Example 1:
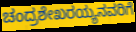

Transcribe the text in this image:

ಚಂದ್ರಶೇಖರಯ್ಯನವರಿಗೆ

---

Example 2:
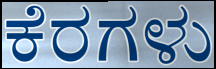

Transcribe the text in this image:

ಕೆರಗಳು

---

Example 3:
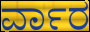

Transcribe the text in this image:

ರ್ವಾರ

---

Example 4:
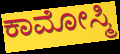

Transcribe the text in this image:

ಕಾಮೋಸ್ಮಿ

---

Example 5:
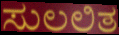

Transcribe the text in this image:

ಸುಲಲಿತ